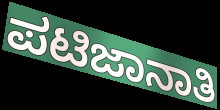
ಪಟಿಜಾನಾತಿ